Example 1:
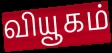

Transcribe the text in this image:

வியூகம்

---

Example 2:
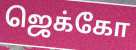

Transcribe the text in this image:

ஜெக்கோ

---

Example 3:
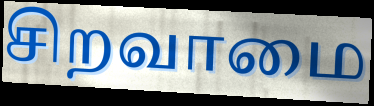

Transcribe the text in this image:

சிறவாமை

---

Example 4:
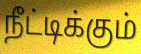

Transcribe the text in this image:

நீட்டிக்கும்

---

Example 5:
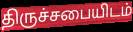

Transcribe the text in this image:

திருச்சபையிடம்